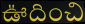
ఊదించి